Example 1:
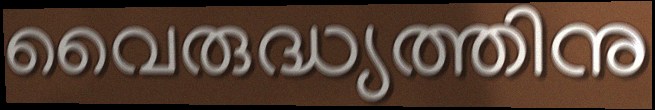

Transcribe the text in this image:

വൈരുദ്ധ്യത്തിനു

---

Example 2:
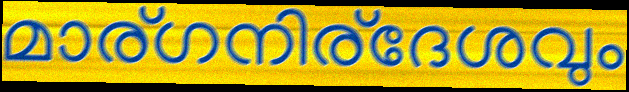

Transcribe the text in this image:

മാര്ഗനിര്ദേശവും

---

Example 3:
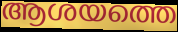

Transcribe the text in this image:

ആശയത്തെ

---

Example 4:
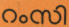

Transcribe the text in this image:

റംസി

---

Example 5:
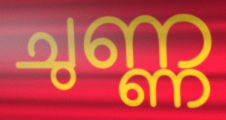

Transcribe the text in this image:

ചുണ്ണ